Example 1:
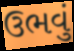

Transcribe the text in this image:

ઉભવું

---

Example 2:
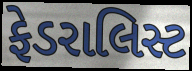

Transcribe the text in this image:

ફેડરાલિસ્ટ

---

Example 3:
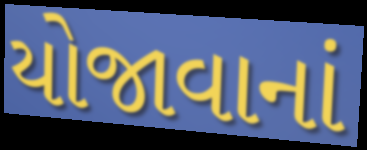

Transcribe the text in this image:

યોજાવાનાં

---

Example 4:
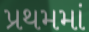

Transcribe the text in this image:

પ્રથમમાં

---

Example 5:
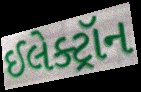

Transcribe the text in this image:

ઈલેક્ટ્રૉન